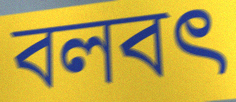
বলবৎ